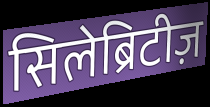
सिलेब्रिटीज़